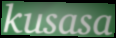
kusasa